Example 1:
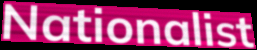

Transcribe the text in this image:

Nationalist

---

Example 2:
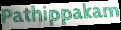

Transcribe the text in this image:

Pathippakam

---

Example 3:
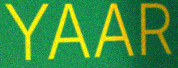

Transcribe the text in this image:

YAAR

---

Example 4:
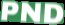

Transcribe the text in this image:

PND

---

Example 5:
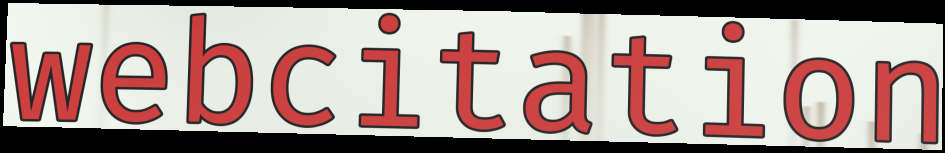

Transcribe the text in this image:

webcitation